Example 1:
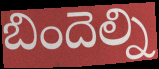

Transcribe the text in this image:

బిందెల్ని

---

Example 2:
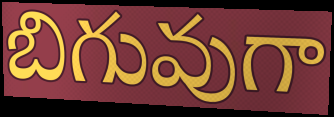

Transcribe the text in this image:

బిగువుగా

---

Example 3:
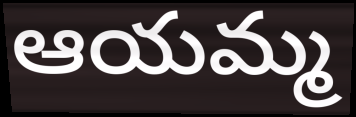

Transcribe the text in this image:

ఆయమ్మ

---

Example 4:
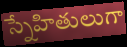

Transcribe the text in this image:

స్నేహితులుగా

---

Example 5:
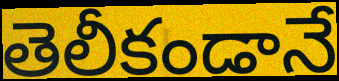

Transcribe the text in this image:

తెలీకండానే